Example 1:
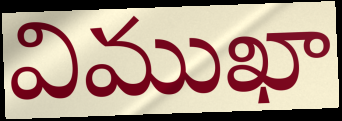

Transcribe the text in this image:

విముఖా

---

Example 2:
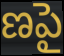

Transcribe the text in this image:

ణపై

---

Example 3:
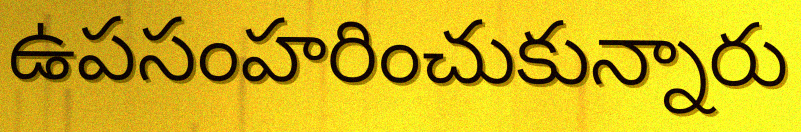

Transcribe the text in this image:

ఉపసంహరించుకున్నారు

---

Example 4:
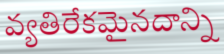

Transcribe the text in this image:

వ్యతిరేకమైనదాన్ని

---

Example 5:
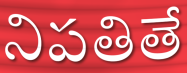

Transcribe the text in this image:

నిపతితే